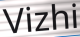
Vizhi